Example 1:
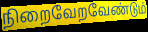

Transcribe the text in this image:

நிறைவேறவேண்டும்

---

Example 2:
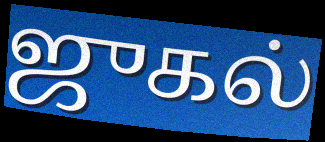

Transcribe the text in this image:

ஜுகல்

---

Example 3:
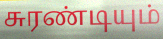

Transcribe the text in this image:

சுரண்டியும்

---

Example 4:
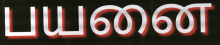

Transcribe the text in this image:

பயனை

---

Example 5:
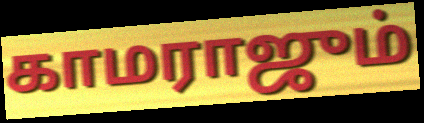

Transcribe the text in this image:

காமராஜும்